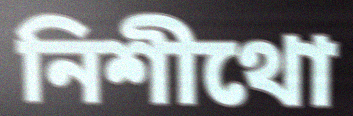
নিশীথো